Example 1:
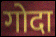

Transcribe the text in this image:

गोदा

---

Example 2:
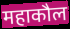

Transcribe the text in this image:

महाकौल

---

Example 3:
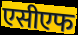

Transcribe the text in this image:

एसीएफ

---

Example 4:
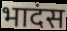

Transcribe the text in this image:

भादंस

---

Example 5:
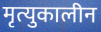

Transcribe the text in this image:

मृत्युकालीन